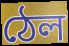
ঠেল